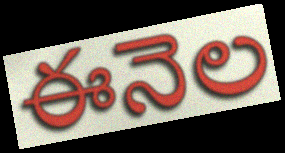
ఈనెల